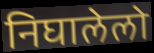
निघालेलो